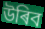
উৰিব